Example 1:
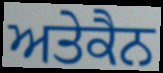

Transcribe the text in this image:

ਅਤੇਕੈਨ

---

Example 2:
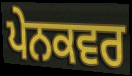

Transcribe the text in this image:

ਪੇਨਕਵਰ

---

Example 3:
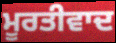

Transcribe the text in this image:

ਮੂਰਤੀਵਾਦ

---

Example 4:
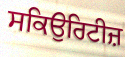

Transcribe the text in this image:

ਸਕਿਉਰਿਟੀਜ਼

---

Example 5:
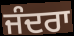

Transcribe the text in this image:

ਜੰਦਰਾ